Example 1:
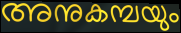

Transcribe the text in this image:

അനുകമ്പയും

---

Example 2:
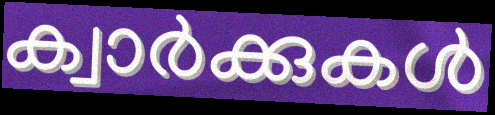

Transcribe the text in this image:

ക്വാർക്കുകൾ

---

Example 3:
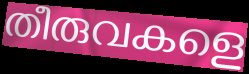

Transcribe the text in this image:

തീരുവകളെ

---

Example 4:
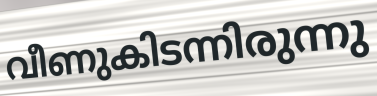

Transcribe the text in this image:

വീണുകിടന്നിരുന്നു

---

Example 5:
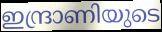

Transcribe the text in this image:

ഇന്ദ്രാണിയുടെ